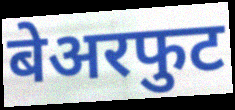
बेअरफुट